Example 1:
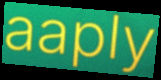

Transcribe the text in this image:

aaply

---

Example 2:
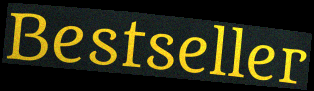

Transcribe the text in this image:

Bestseller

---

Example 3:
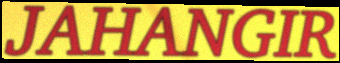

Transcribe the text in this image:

JAHANGIR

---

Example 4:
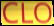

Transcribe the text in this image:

CLO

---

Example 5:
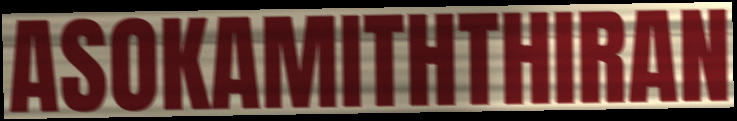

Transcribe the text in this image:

ASOKAMITHTHIRAN